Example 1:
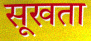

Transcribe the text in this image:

सूखता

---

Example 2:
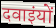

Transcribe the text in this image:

दवाइंयों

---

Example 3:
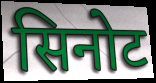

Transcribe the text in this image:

सिनोट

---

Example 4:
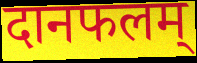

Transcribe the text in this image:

दानफलम्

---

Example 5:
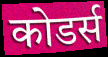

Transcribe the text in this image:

कोडर्स